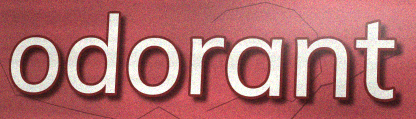
odorant